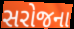
સરોજના